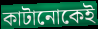
কাটানোকেই